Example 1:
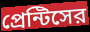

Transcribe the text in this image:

প্রেন্টিসের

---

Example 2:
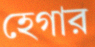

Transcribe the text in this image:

হেগার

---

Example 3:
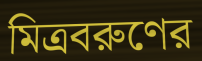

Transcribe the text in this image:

মিত্রবরুণের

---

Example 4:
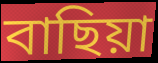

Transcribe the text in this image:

বাছিয়া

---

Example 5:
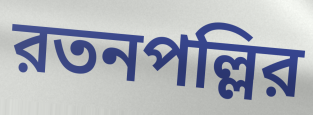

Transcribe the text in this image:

রতনপল্লির